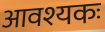
आवश्यकः